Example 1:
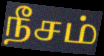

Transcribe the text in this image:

நீசம்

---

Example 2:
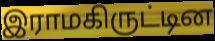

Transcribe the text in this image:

இராமகிருட்டின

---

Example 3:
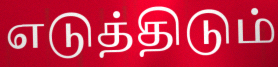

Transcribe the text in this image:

எடுத்திடும்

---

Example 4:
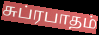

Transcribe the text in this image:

சுப்ரபாதம்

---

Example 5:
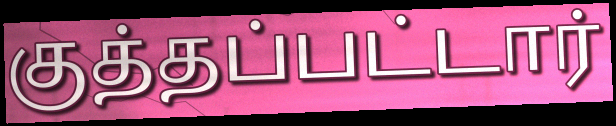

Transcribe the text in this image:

குத்தப்பட்டார்